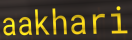
aakhari